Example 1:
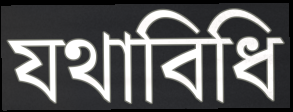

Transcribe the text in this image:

যথাবিধি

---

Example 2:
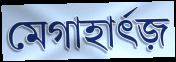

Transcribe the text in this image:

মেগাহার্ৎজ়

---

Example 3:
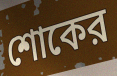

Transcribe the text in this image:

শোকের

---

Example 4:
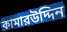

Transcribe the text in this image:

কামারউদ্দিন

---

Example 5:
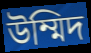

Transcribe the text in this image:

উম্মিদ